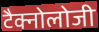
टैक्नोलोजी